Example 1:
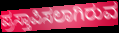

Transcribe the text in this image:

ಪ್ರಸ್ತಾಪಿಸಲಾಗಿರುವ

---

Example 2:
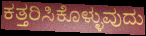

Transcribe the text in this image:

ಕತ್ತರಿಸಿಕೊಳ್ಳುವುದು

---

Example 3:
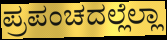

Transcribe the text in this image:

ಪ್ರಪಂಚದಲ್ಲೆಲ್ಲಾ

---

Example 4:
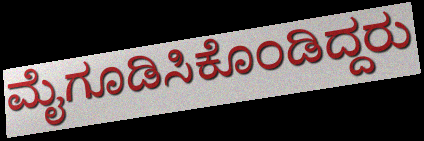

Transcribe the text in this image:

ಮೈಗೂಡಿಸಿಕೊಂಡಿದ್ದರು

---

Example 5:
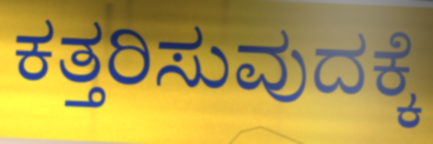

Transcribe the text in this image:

ಕತ್ತರಿಸುವುದಕ್ಕೆ